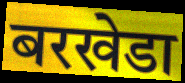
बरखेडा